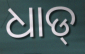
ଧାଡ୍